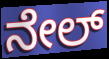
ನೇಲ್